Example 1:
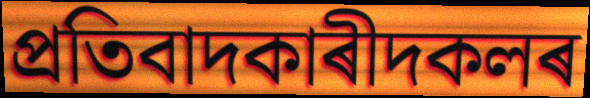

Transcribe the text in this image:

প্ৰতিবাদকাৰীদকলৰ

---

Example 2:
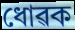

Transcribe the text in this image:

ধোৱক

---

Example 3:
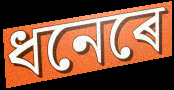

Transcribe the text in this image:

ধনেৰে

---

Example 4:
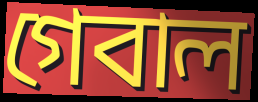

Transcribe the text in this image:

গেবাল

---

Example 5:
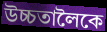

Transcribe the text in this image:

উচ্চতালৈকে